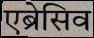
एब्रेसिव